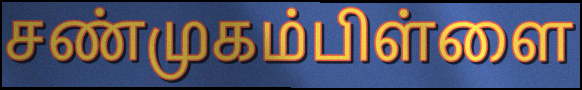
சண்முகம்பிள்ளை